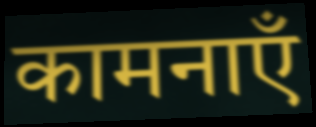
कामनाएँ